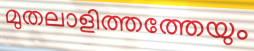
മുതലാളിത്തത്തേയും